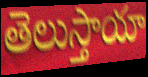
తెలుస్తాయా